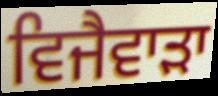
ਵਿਜੈਵਾੜਾ